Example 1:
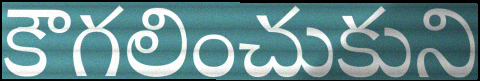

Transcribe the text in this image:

కౌగలించుకుని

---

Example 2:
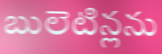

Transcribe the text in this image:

బులెటిన్లను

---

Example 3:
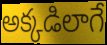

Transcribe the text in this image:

అక్కడిలాగే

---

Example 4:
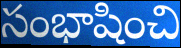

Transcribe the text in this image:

సంభాషించి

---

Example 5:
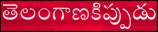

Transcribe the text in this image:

తెలంగాణకిప్పుడు